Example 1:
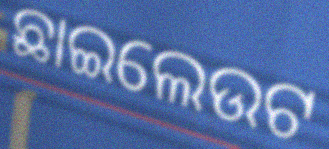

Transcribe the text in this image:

ଛାଇଲେଉଟ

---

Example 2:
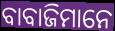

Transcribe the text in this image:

ବାବାଜିମାନେ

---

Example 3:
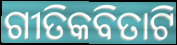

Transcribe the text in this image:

ଗୀତିକବିତାଟି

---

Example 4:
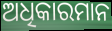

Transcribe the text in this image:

ଅଧିକାରମାନ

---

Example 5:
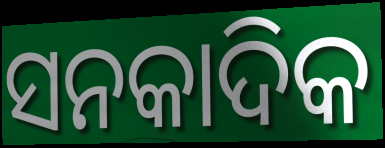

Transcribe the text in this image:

ସନକାଦିକ